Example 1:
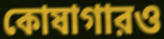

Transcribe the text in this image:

কোষাগারও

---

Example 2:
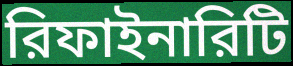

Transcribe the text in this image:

রিফাইনারিটি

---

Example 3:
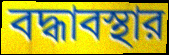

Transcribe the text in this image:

বদ্ধাবস্থার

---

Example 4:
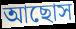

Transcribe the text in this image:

আছোস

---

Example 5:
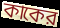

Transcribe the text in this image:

কাকের